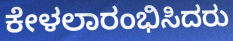
ಕೇಳಲಾರಂಭಿಸಿದರು